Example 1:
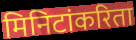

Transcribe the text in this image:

मिनिटांकरिता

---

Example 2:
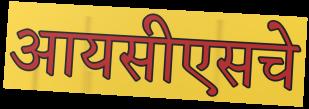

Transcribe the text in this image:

आयसीएसचे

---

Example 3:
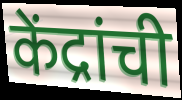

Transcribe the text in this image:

केंद्रांची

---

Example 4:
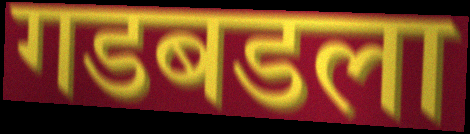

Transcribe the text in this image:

गडबडला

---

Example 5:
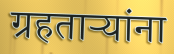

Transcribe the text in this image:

ग्रहताऱ्यांना